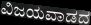
ವಿಜಯವಾಡದ